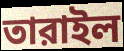
তারাইল